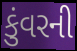
કુંવરની